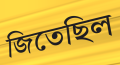
জিতেছিল